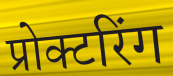
प्रोक्टरिंग